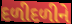
દળીદળીને